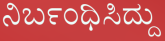
ನಿರ್ಬಂಧಿಸಿದ್ದು